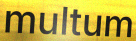
multum